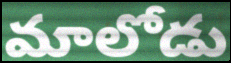
మాలోడు